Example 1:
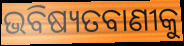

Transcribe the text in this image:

ଭବିଷ୍ୟତବାଣୀକୁ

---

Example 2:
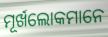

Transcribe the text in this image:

ମୂର୍ଖଲୋକମାନେ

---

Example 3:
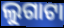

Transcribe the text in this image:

ଲୁଗାଟା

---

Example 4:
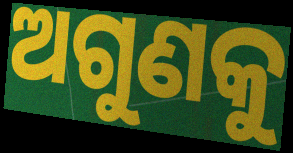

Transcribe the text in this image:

ଅଗୁଣକୁ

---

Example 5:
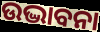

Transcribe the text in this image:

ଉଦ୍ଭାବନା